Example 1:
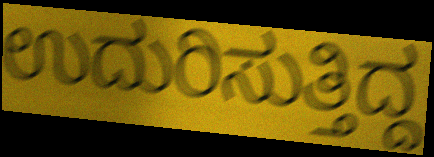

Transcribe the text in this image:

ಉದುರಿಸುತ್ತಿದ್ದ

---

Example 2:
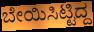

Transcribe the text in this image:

ಬೇಯಿಸಿಟ್ಟಿದ್ದ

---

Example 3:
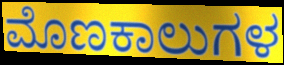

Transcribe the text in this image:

ಮೊಣಕಾಲುಗಳ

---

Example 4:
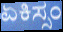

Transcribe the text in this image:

ಏಕಿಸ್ಸಂ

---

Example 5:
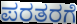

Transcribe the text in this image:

ಪರತರಗೆ